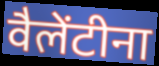
वैलेंटीना